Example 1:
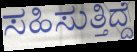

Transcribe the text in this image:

ಸಹಿಸುತ್ತಿದ್ದೆ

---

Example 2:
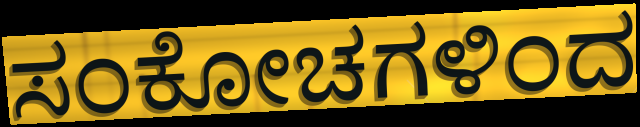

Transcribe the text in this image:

ಸಂಕೋಚಗಳಿಂದ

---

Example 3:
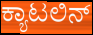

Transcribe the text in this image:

ಕ್ಯಾಟಲಿನ್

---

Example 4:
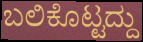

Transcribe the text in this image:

ಬಲಿಕೊಟ್ಟದ್ದು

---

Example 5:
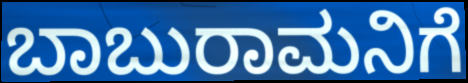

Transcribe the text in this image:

ಬಾಬುರಾಮನಿಗೆ